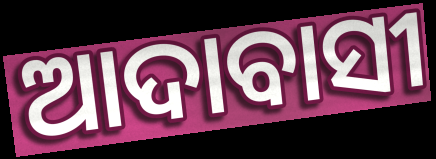
ଆଦାବାସୀ